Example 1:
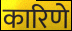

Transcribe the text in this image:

कारिणे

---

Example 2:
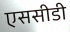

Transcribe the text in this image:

एससीडी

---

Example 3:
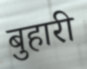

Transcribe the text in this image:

बुहारी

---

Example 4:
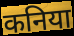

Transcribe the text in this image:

कनिया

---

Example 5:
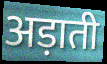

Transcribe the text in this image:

अड़ाती